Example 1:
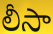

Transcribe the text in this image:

లీసా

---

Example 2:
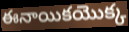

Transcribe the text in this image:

ఈనాయికయొక్క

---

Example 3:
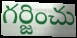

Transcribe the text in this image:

గర్జించు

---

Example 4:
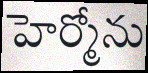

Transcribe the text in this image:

హెర్మోను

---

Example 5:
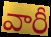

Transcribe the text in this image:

వారీ